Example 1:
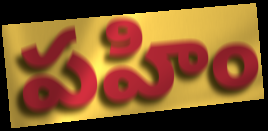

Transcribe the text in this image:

పహిం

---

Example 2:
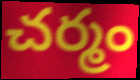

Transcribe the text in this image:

చర్మం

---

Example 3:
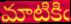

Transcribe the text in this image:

మాటికిఁ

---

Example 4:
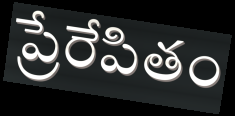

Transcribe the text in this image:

ప్రేరేపితం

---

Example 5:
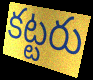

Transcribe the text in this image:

కట్టరు